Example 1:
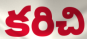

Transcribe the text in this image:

కరిచి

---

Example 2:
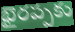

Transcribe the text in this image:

భైరప్పకు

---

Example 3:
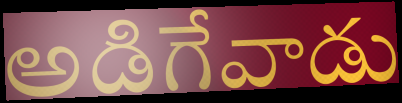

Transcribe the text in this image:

అడిగేవాడు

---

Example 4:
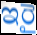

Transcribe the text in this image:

ఇరై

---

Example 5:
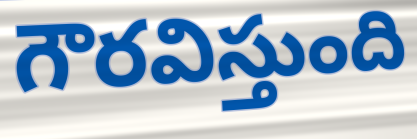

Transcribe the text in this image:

గౌరవిస్తుంది